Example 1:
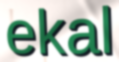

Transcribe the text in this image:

ekal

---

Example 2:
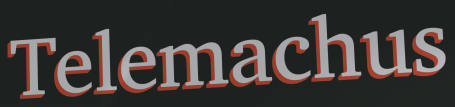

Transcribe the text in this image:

Telemachus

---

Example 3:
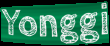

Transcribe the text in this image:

Yonggi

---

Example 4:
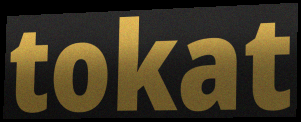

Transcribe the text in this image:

tokat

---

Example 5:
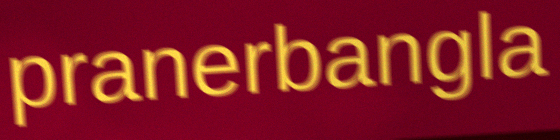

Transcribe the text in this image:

pranerbangla